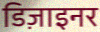
डिज़ाइनर